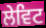
ਲੇਵਿਟ